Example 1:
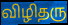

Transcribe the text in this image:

விழிதரு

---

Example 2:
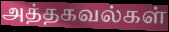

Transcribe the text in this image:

அத்தகவல்கள்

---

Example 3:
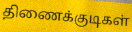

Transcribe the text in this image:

திணைக்குடிகள்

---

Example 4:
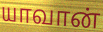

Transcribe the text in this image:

யாவான்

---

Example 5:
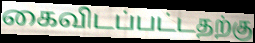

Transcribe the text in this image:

கைவிடப்பட்டதற்கு